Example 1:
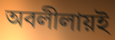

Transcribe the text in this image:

অবলীলায়ই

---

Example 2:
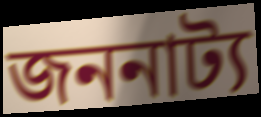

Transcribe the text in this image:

জননাট্য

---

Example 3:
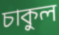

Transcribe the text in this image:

চাকুল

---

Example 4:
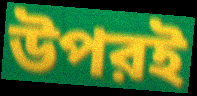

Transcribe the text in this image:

উপরই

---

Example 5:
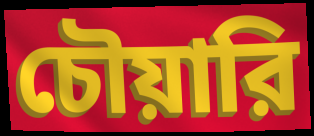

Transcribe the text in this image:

চৌয়ারি